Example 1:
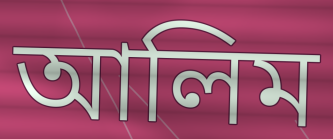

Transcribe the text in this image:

আলিম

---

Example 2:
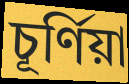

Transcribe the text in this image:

চূর্ণিয়া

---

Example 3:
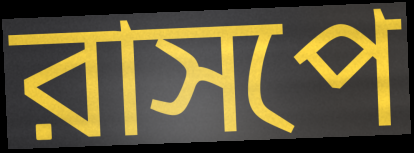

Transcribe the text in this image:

রাসপে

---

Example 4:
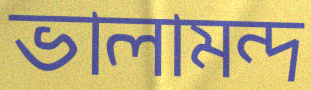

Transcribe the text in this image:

ভালামন্দ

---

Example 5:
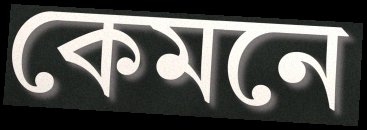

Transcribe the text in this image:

কেমনে